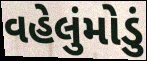
વહેલુંમોડું